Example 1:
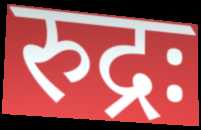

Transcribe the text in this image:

रुद्रः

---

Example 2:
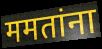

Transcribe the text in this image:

ममतांना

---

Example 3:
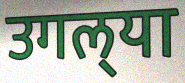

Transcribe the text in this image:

उगल्या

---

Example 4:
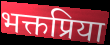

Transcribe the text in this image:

भक्तप्रिया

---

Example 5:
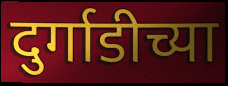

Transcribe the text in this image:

दुर्गाडीच्या